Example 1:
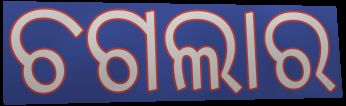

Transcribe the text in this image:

ଚଗଲାର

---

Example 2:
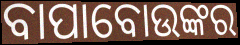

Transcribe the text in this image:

ବାପାବୋଉଙ୍କର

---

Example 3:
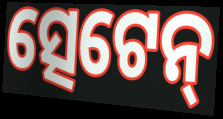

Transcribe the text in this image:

ତ୍ସେଟେନ୍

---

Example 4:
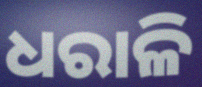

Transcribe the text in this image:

ଧରାଳି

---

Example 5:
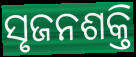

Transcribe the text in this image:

ସୃଜନଶକ୍ତି